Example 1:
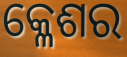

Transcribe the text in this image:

କ୍ଳେଶର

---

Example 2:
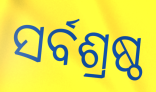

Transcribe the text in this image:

ସର୍ବଶ୍ରଷ୍ଠ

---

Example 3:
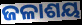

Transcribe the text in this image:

ଜଳାଶୟ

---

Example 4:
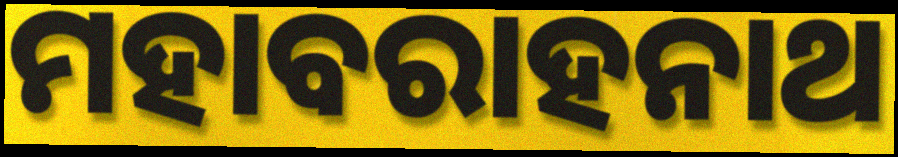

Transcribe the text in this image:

ମହାବରାହନାଥ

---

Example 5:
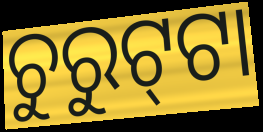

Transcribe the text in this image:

ଚୁରୁଟ୍‍ଟା